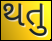
થતુ